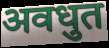
अवधुत